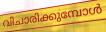
വിചാരിക്കുമ്പോൾ